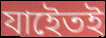
যাইেতই